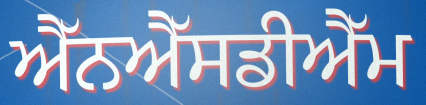
ਐੱਨਐੱਸਡੀਐੱਮ